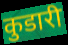
कुडारी